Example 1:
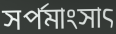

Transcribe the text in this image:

সর্পমাংসাৎ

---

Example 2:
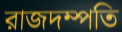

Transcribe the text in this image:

রাজদম্পতি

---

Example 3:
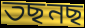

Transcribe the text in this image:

তছনছ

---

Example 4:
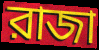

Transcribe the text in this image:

রাজা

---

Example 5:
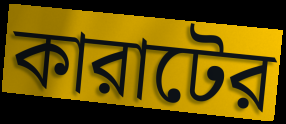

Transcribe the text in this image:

কারাটের